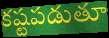
కష్టపడుతూ